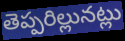
తెప్పరిల్లునట్లు